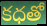
కధతో